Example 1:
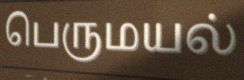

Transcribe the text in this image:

பெருமயல்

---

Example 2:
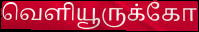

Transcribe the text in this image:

வெளியூருக்கோ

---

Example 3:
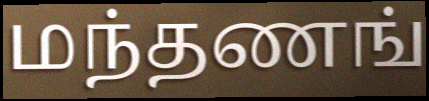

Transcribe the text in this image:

மந்தணங்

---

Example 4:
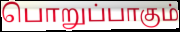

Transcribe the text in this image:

பொறுப்பாகும்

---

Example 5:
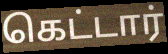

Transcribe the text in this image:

கெட்டார்